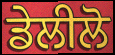
ਡੇਲੀਲੋ